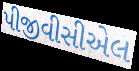
પીજીવીસીએલ